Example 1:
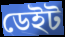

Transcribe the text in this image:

ডেইট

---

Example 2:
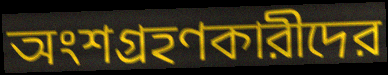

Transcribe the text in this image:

অংশগ্রহণকারীদের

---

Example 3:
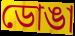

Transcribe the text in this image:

ডোঙা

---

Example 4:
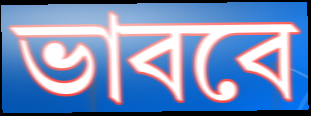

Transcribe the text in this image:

ভাববে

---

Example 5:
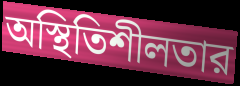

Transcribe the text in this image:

অস্থিতিশীলতার